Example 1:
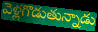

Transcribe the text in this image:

వెళ్లగొడుతున్నాడు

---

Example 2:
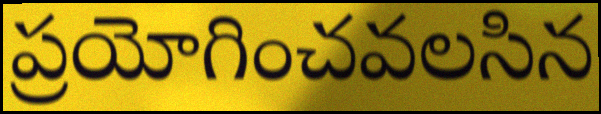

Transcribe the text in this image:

ప్రయోగించవలసిన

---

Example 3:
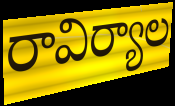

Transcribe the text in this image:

రావిర్యాల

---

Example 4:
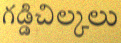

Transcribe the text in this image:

గడ్డిచిల్కలు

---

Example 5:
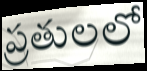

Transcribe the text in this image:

ప్రతులలో